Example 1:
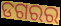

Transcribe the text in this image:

ଡଗରର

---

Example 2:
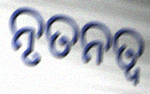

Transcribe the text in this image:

ନୃତନତ୍ୱ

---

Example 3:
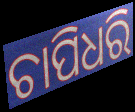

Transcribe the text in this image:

ଚାପିଧରି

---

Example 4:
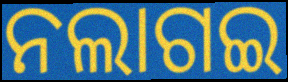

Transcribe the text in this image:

ନଲାଗଇ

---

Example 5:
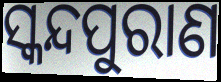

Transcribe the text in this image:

ସ୍କନ୍ଦପୁରାଣ